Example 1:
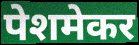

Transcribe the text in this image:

पेशमेकर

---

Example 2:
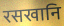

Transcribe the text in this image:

रसखानि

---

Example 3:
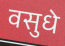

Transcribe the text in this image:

वसुधे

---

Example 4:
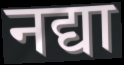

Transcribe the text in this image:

नद्या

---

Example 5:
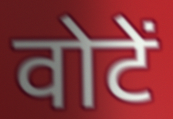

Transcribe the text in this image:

वोटें